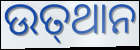
ଉତ୍‌ଥାନ